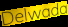
Delwada